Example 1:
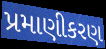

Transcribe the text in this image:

પ્રમાણીકરણ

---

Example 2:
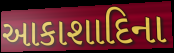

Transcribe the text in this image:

આકાશાદિના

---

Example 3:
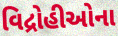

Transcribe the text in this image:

વિદ્રોહીઓના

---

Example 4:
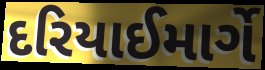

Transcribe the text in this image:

દરિયાઈમાર્ગે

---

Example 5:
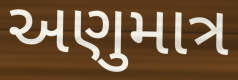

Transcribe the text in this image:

અણુમાત્ર